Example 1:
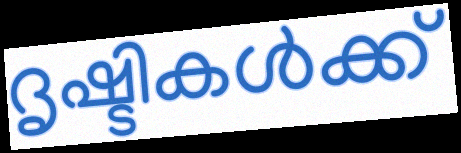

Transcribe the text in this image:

ദൃഷ്ടികൾക്ക്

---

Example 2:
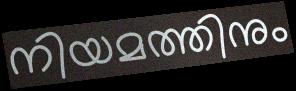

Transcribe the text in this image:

നിയമത്തിനും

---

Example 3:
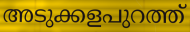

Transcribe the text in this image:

അടുക്കളപുറത്ത്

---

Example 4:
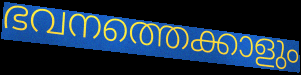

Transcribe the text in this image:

ഭവനത്തെക്കാളും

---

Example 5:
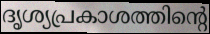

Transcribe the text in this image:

ദൃശ്യപ്രകാശത്തിന്റെ